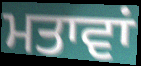
ਮਤਾਵਾਂ